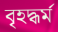
বৃহদ্ধৰ্ম